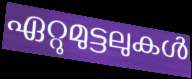
ഏറ്റുമുട്ടലുകൾ